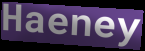
Haeney